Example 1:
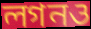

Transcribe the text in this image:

লগনও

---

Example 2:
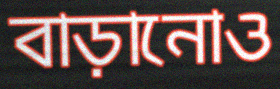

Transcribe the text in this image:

বাড়ানোও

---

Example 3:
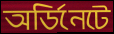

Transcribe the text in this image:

অর্ডিনেটে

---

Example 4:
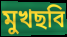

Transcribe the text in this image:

মুখছবি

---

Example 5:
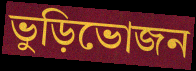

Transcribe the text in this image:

ভুড়িভোজন